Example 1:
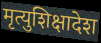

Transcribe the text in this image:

मृत्युशिक्षादेश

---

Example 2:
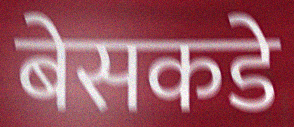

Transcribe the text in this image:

बेसकडे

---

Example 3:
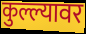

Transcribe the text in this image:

कुल्ल्यावर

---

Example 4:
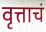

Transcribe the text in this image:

वृत्ताचं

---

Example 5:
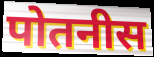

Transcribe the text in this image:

पोतनीस